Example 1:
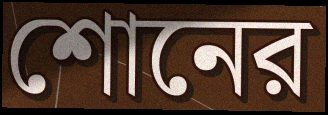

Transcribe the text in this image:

শোনের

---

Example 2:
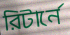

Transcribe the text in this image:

রিটার্নে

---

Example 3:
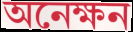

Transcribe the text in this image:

অনেক্ষন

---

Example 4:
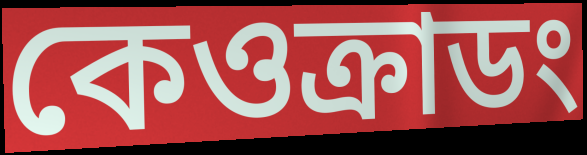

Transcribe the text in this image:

কেওক্রাডং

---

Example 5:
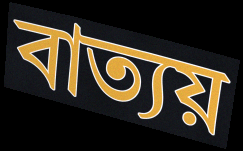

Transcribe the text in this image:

বাত্যয়